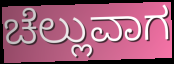
ಚೆಲ್ಲುವಾಗ